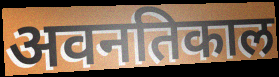
अवनतिकाल